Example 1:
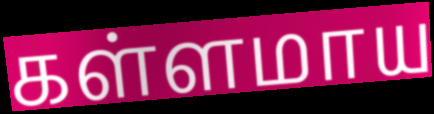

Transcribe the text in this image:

கள்ளமாய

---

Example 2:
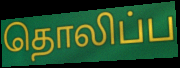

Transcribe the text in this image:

தொலிப்ப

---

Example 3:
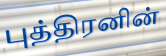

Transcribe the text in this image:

புத்திரனின்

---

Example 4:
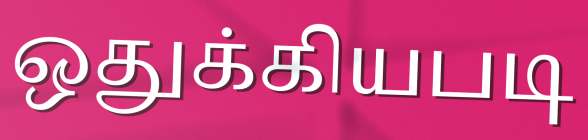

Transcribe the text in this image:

ஒதுக்கியபடி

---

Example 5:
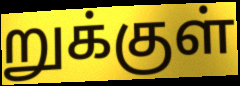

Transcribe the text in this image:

றுக்குள்